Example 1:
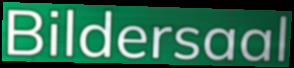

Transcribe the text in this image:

Bildersaal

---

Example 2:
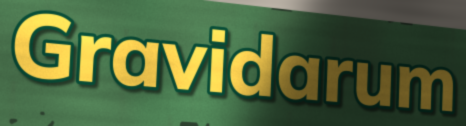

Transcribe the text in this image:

Gravidarum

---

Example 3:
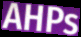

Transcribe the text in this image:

AHPs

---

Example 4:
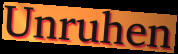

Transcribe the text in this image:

Unruhen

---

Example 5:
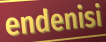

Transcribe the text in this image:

endenisi